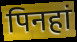
पिनहां